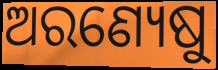
ଅରଣ୍ୟେଷୁ